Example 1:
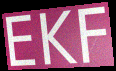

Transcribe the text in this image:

EKF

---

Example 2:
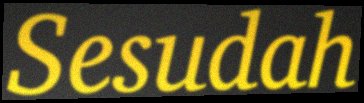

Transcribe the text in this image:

Sesudah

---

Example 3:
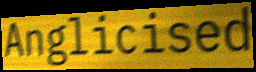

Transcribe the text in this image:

Anglicised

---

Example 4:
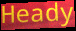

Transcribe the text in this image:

Heady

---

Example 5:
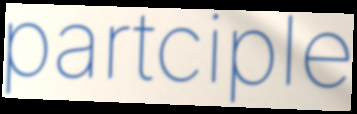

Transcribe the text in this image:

partciple